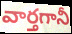
వార్తగానీ